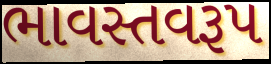
ભાવસ્તવરૂપ